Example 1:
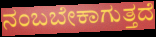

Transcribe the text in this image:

ನಂಬಬೇಕಾಗುತ್ತದೆ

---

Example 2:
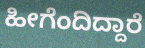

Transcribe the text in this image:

ಹೀಗೆಂದಿದ್ದಾರೆ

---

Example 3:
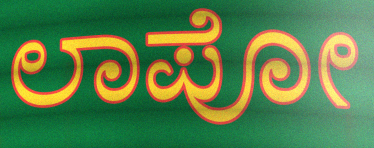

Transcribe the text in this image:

ಲಾಪೋ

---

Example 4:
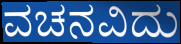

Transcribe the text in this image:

ವಚನವಿದು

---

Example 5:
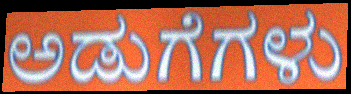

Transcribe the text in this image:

ಅಡುಗೆಗಳು